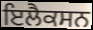
ਇਲੈਕਸਨ